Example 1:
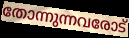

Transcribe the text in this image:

തോന്നുന്നവരോട്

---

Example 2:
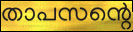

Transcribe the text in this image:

താപസന്റെ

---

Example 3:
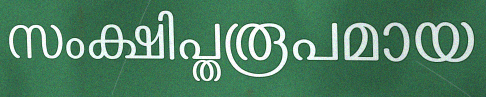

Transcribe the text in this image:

സംക്ഷിപ്തരൂപമായ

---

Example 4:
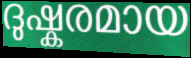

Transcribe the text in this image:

ദുഷ്കരമായ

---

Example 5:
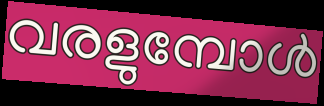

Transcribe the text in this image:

വരളുമ്പോൾ